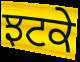
ਝਟਕੇ